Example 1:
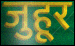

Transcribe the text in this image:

जुहूर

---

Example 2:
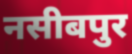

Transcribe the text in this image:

नसीबपुर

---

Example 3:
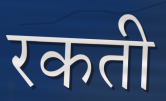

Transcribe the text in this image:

रकती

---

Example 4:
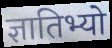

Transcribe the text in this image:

ज्ञातिभ्यो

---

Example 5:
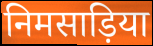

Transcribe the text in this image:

निमसाड़िया